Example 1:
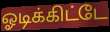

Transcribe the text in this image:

ஓடிக்கிட்டே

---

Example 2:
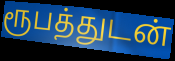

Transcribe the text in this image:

ரூபத்துடன்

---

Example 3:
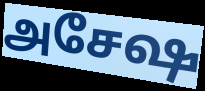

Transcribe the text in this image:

அசேஷ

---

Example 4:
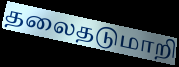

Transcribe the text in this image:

தலைதடுமாறி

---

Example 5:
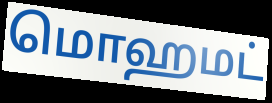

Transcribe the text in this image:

மொஹமட்